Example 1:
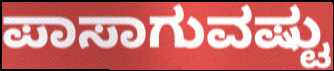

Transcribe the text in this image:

ಪಾಸಾಗುವಷ್ಟು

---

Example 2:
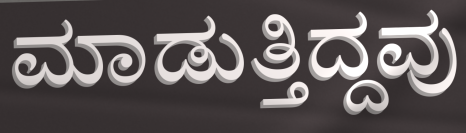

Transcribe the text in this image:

ಮಾಡುತ್ತಿದ್ದವು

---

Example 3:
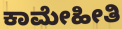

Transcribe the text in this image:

ಕಾಮೇಹೀತಿ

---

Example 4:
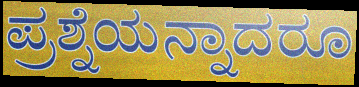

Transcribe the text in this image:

ಪ್ರಶ್ನೆಯನ್ನಾದರೂ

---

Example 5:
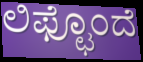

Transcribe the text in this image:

ಲಿಫ್ಟೊಂದೆ